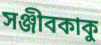
সঞ্জীবকাকু